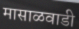
मासाळवाडी